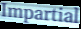
Impartial